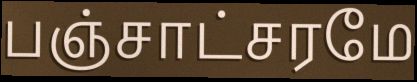
பஞ்சாட்சரமே